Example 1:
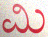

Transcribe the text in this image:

ಮಿ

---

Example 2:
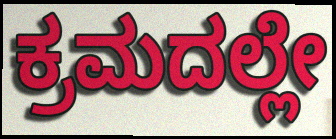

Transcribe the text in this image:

ಕ್ರಮದಲ್ಲೇ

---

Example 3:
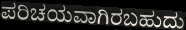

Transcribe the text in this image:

ಪರಿಚಯವಾಗಿರಬಹುದು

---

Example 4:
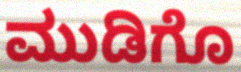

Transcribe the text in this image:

ಮುಡಿಗೊ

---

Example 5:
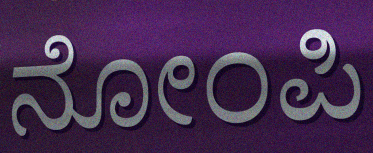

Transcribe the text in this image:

ನೋಂಪಿ